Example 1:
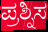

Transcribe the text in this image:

ಪ್ರಶ್ನಿಸ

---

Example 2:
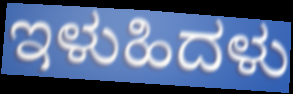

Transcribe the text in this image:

ಇಳುಹಿದಳು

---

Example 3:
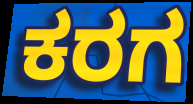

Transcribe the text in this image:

ಕರಗ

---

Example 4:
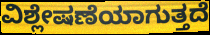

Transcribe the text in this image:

ವಿಶ್ಲೇಷಣೆಯಾಗುತ್ತದೆ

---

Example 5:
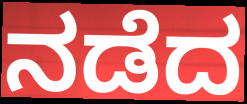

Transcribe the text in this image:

ನಡೆದ